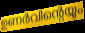
ഉണർവിന്റെയും